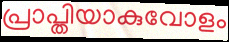
പ്രാപ്തിയാകുവോളം